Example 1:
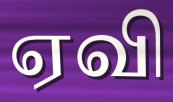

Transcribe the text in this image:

ஏவி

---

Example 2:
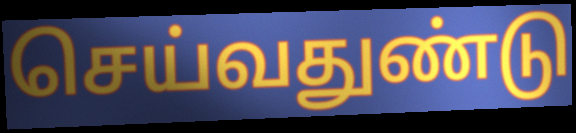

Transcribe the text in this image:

செய்வதுண்டு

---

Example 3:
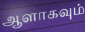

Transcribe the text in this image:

ஆளாகவும்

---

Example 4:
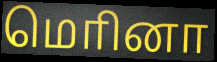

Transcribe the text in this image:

மெரினா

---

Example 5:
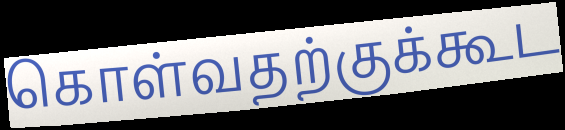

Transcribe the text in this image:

கொள்வதற்குக்கூட